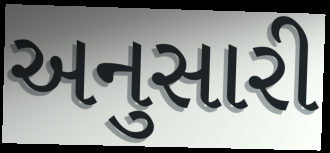
અનુસારી